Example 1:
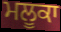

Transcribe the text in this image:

ਮਲੂਕਾ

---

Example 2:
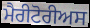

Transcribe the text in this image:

ਮੈਰੀਟੋਰੀਅਸ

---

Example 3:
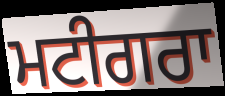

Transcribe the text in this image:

ਮਟੀਗਰਾ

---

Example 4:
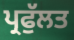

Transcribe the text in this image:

ਪ੍ਰਫੁੱਲਤ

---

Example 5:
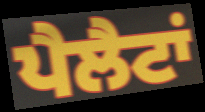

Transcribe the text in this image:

ਪੈਲੈਟਾਂ